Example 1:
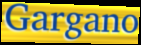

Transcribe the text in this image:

Gargano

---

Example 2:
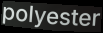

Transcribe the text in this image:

polyester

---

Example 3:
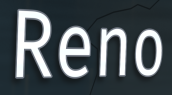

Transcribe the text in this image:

Reno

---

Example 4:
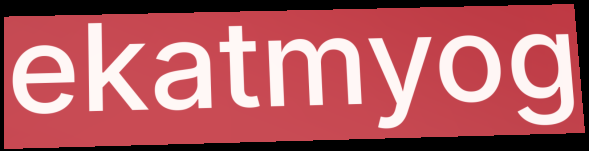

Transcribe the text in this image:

ekatmyog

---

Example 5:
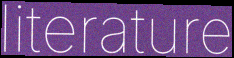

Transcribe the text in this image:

literature